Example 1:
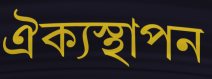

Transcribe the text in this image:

ঐক্যস্থাপন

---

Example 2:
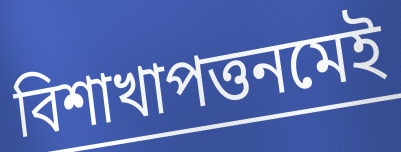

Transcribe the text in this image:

বিশাখাপত্তনমেই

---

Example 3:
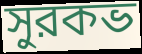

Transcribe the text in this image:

সুরকভ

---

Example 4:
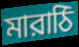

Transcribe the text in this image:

মারাঠি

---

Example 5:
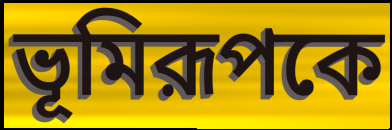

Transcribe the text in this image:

ভূমিরূপকে